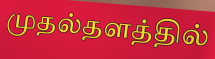
முதல்தளத்தில்